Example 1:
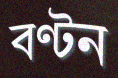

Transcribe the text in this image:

বণ্টন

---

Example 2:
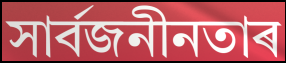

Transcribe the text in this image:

সাৰ্বজনীনতাৰ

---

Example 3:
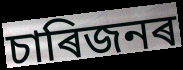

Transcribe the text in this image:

চাৰিজনৰ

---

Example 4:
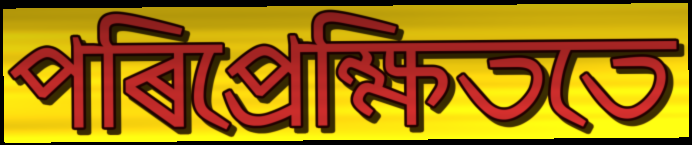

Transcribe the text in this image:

পৰিপ্ৰেক্ষিততে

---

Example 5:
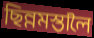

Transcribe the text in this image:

ছিন্নমস্তালৈ